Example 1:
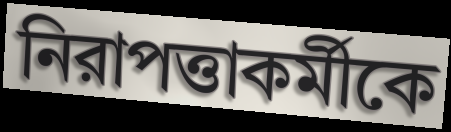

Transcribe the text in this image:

নিরাপত্তাকর্মীকে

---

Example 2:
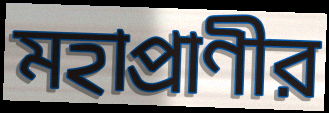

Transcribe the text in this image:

মহাপ্রাণীর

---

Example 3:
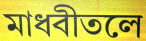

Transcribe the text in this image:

মাধবীতলে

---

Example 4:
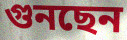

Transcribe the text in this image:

গুনছেন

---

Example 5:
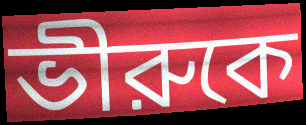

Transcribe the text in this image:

ভীরুকে